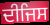
ਦੀਜਿਸ